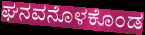
ಘನವನೊಳಕೊಂಡ